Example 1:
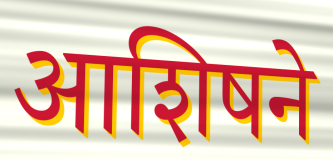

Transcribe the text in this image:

आशिषने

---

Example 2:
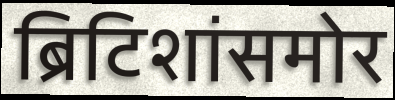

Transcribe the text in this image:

ब्रिटिशांसमोर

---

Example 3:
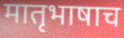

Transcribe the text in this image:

मातृभाषाच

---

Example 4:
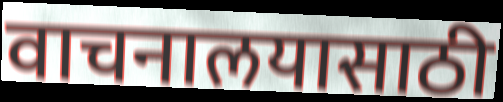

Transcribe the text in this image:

वाचनालयासाठी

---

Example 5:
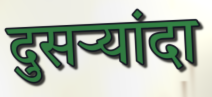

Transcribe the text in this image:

दुसर्‍यांदा